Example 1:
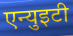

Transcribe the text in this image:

एन्युइटी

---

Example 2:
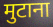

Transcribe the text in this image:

मुटाना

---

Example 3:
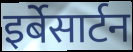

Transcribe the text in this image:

इर्बेसार्टन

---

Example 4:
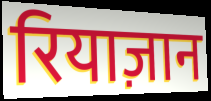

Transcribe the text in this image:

रियाज़ान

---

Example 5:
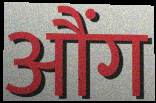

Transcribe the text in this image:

औंग